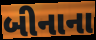
બીનાના